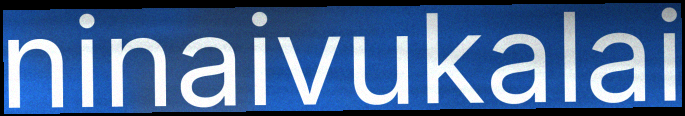
ninaivukalai